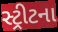
સ્ટ્રીટના